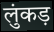
लुंकड़